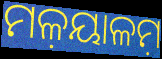
ମଳ଼ୟାଳମ଼